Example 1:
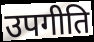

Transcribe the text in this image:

उपगीति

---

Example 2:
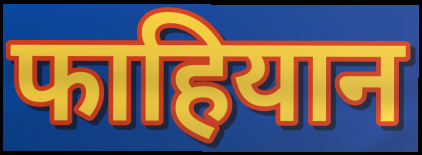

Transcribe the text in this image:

फाहियान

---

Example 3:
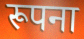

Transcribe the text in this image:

रूपना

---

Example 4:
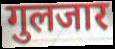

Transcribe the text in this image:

गुलजार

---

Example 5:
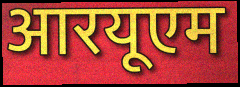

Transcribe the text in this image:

आरयूएम